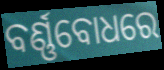
ବର୍ଣ୍ଣବୋଧରେ